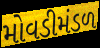
મોવડીમંડળ